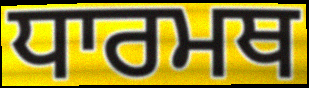
ਧਾਰਮਥ